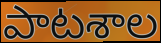
పాటశాల